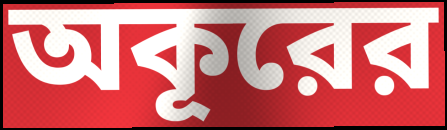
অকূরের